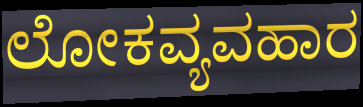
ಲೋಕವ್ಯವಹಾರ